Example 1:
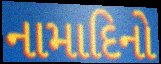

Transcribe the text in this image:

નામાદિનો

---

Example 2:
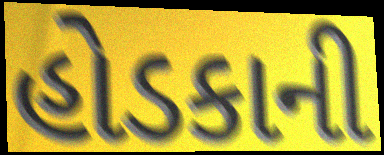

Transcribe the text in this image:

હોડકાની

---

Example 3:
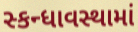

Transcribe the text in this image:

સ્કન્ધાવસ્થામાં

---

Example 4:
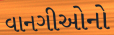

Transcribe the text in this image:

વાનગીઓનો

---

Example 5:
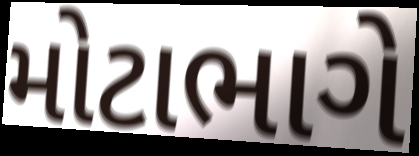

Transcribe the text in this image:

મોટાભાગે